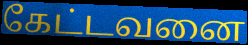
கேட்டவனை